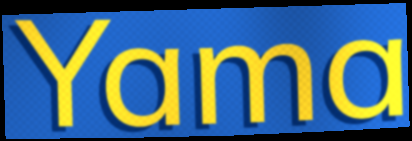
Yama